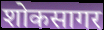
शोकसागर